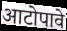
आटोपावे